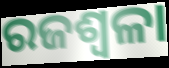
ରଜଶ୍ୱଳା